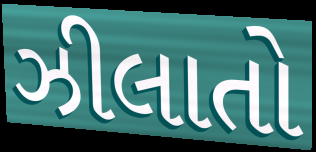
ઝીલાતો